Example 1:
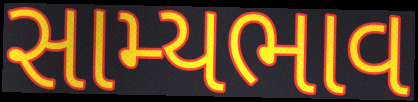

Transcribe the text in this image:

સામ્યભાવ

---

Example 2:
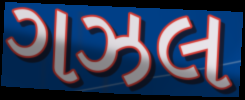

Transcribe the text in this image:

ગઝલ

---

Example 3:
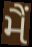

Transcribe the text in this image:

મૈં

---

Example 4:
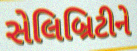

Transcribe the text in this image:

સેલિબ્રિટીને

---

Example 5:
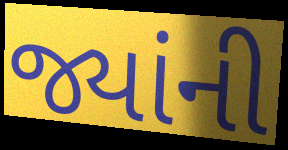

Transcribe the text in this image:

જ્યાંની